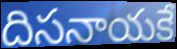
దిసనాయకే